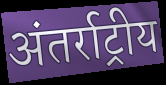
अंतर्राट्रीय